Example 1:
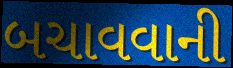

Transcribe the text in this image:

બચાવવાની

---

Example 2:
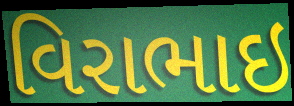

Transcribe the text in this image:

વિરાભાઇ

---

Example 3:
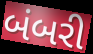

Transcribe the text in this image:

બંબરી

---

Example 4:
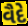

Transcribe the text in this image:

વૈદે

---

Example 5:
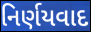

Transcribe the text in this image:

નિર્ણયવાદ